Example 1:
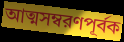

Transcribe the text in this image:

আত্মসম্বরণপূর্বক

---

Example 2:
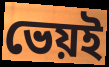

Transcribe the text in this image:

ভেয়ই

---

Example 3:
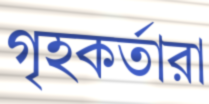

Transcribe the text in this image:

গৃহকর্তারা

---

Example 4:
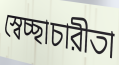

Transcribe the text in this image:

স্বেচ্ছাচারীতা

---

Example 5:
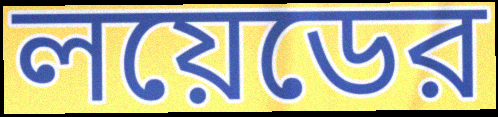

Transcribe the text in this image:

লয়েডের